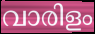
വാരിളം